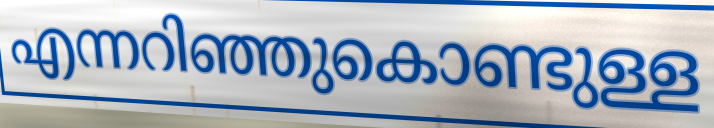
എന്നറിഞ്ഞുകൊണ്ടുള്ള